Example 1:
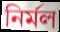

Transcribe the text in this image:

নিৰ্মল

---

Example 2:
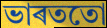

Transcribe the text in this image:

ভাৰততো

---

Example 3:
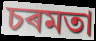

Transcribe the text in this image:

চৰমতা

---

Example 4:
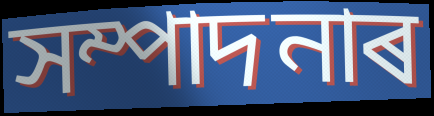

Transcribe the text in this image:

সম্পাদনাৰ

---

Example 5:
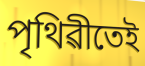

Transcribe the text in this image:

পৃথিৱীতেই